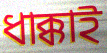
ধাক্কাই